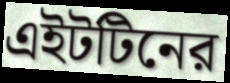
এইটটিনের